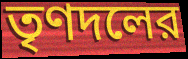
তৃণদলের